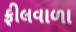
ફ્રીલવાળા